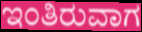
ಇಂತಿರುವಾಗ